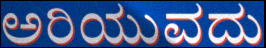
ಅರಿಯುವದು